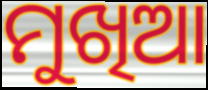
ମୁଖିଆ